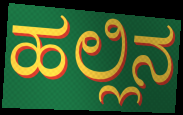
ಹಲ್ಲಿನ